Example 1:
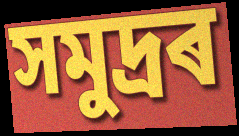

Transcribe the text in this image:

সমুদ্ৰৰ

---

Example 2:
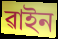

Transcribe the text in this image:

ৱাইন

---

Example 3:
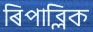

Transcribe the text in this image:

ৰিপাব্লিক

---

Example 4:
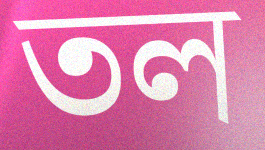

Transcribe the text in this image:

তল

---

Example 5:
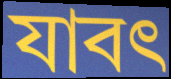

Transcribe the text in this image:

যাবৎ